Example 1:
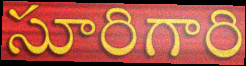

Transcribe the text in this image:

సూరిగారి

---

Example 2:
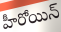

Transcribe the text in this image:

హీరోయిన్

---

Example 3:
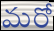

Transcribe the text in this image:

మరో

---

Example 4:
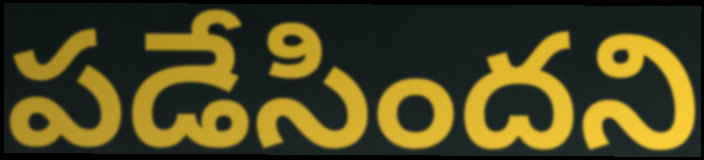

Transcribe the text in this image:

పడేసిందని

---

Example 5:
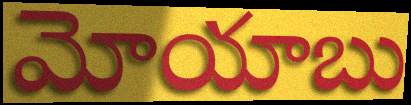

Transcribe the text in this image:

మోయాబు